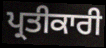
ਪ੍ਰਤੀਕਾਰੀ